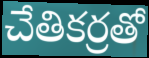
చేతికర్రతో